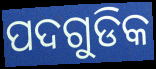
ପଦଗୁଡିକ